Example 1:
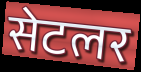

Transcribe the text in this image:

सेटलर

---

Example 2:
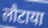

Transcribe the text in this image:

लौटाया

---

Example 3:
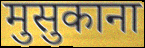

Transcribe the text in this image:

मुसुकाना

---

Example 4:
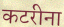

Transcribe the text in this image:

कटरीना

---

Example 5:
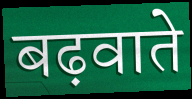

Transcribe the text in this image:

बढ़वाते